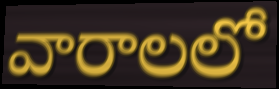
వారాలలో